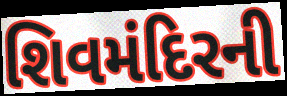
શિવમંદિરની